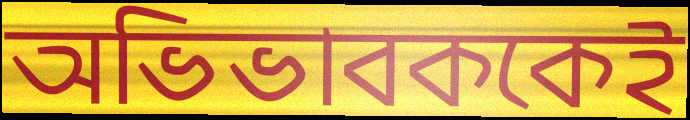
অভিভাবককেই